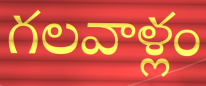
గలవాళ్లం